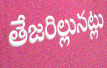
తేజరిల్లునట్లు